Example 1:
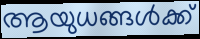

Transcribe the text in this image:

ആയുധങ്ങൾക്ക്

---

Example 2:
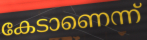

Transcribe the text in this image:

കേടാണെന്ന്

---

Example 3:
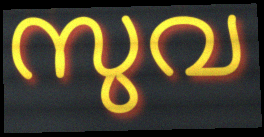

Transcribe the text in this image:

സുവ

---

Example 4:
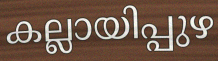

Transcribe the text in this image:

കല്ലായിപ്പുഴ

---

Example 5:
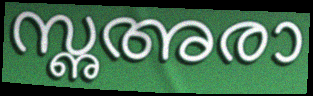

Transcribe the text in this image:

സൢഅരാ